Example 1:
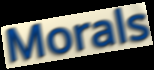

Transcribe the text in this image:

Morals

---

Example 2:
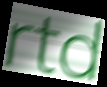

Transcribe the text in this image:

rtd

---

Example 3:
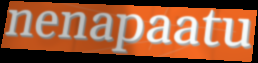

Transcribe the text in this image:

nenapaatu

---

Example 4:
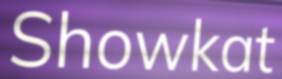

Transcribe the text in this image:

Showkat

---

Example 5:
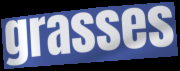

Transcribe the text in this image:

grasses